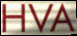
HVA